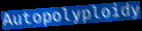
Autopolyploidy